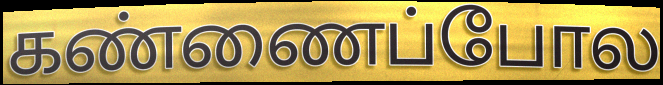
கண்ணைப்போல